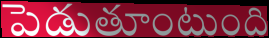
పెడుతూంటుంది